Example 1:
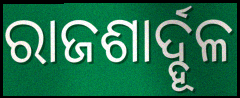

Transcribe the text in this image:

ରାଜଶାର୍ଦ୍ଦୂଳ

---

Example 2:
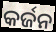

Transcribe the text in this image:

କର୍ଜନ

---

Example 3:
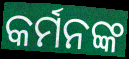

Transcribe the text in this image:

କର୍ମନଙ୍କ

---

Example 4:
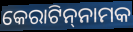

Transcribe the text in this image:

କେରାଟିନ୍‌ନାମକ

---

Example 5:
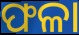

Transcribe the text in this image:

ଫଳା